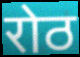
रोठ